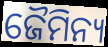
ଜୈମିନ୍ୟ